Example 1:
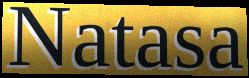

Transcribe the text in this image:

Natasa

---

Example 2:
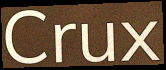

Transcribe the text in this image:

Crux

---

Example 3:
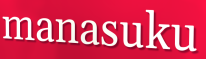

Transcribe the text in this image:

manasuku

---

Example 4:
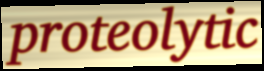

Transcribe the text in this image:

proteolytic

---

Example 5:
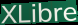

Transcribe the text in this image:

XLibre